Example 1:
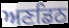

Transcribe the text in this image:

ਅਣਡਿਠ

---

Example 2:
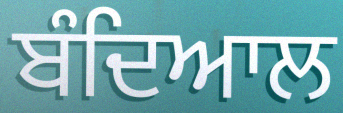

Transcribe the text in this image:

ਬੰਦਿਆਲ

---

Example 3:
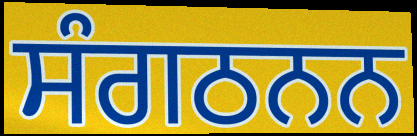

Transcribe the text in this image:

ਸੰਗਠਨਨ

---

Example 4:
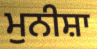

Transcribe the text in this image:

ਮੁਨੀਸ਼ਾ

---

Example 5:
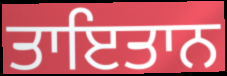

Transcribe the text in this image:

ਤਾਇਤਾਨ